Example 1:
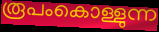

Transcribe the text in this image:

രൂപംകൊള്ളുന്ന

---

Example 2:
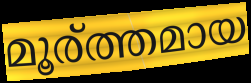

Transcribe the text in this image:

മൂര്ത്തമായ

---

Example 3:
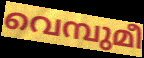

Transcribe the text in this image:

വെമ്പുമീ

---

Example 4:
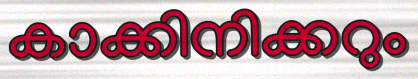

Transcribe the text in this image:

കാക്കിനിക്കറും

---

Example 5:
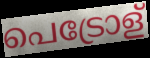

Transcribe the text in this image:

പെട്രോള്